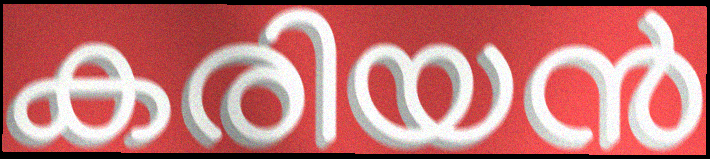
കരിയൻ